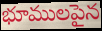
భూములపైన